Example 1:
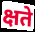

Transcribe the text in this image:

क्षते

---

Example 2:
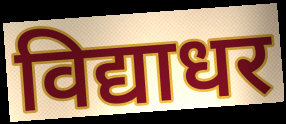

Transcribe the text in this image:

विद्याधर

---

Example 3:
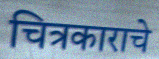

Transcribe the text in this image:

चित्रकाराचे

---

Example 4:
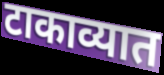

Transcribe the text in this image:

टाकाव्यात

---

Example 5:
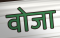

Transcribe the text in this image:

वोजा